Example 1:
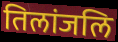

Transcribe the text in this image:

तिलांजलि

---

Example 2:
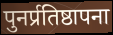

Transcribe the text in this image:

पुनर्प्रतिष्ठापना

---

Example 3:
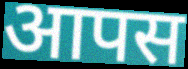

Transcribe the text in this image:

आपस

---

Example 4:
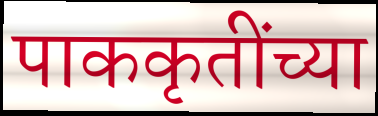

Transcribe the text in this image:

पाककृतींच्या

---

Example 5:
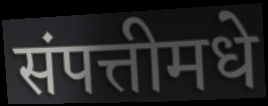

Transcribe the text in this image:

संपत्तीमधे